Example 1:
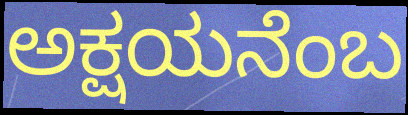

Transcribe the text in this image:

ಅಕ್ಷಯನೆಂಬ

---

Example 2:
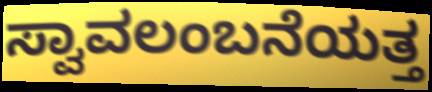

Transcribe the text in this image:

ಸ್ವಾವಲಂಬನೆಯತ್ತ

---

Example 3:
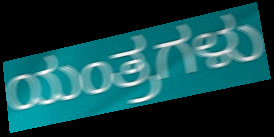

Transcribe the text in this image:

ಯಂತ್ರಗಳು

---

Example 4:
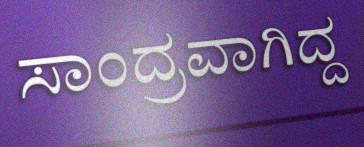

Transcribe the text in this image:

ಸಾಂದ್ರವಾಗಿದ್ದ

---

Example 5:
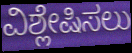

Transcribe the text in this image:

ವಿಶ್ಲೇಷಿಸಲು